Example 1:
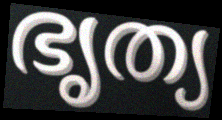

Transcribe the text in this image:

ഭൃത്യ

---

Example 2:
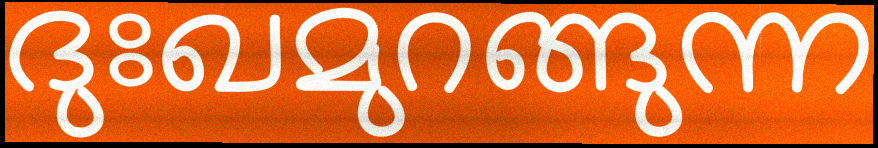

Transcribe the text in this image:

ദുഃഖമുറങ്ങുന്ന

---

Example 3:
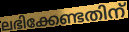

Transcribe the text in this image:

ലഭിക്കേണ്ടതിന്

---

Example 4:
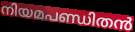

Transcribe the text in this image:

നിയമപണ്ഡിതൻ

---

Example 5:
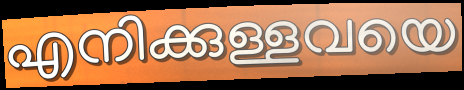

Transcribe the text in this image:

എനിക്കുള്ളവയെ